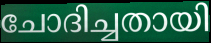
ചോദിച്ചതായി